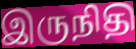
இருநிதி